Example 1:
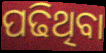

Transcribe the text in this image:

ପଢିଥିବା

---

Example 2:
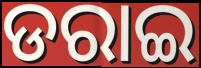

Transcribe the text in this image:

ଡରାଇ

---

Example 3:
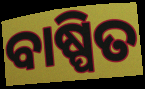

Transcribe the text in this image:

ବାଷ୍ପିତ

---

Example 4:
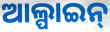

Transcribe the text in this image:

ଆଲ୍ପାଇନ୍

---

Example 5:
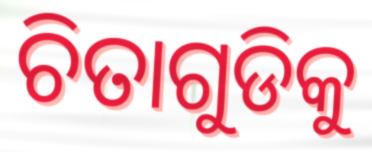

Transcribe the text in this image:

ଚିତାଗୁଡିକୁ